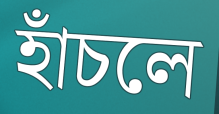
হাঁচলে